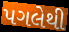
પગલેથી